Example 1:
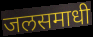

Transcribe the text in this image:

जलसमाधी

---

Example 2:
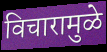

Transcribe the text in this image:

विचारामुळे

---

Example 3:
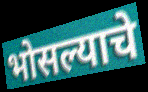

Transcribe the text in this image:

भोसल्याचे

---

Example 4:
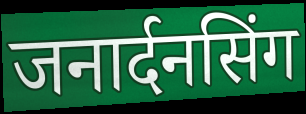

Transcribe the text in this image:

जनार्दनसिंग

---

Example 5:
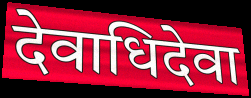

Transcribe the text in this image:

देवाधिदेवा